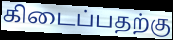
கிடைப்பதற்கு